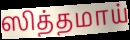
ஸித்தமாய்